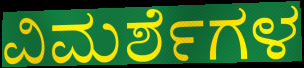
ವಿಮರ್ಶೆಗಳ